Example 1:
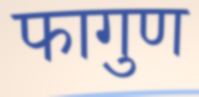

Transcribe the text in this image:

फागुण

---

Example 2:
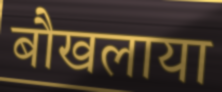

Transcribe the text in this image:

बौखलाया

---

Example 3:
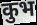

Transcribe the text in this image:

कुभ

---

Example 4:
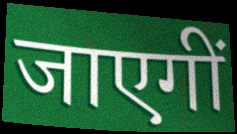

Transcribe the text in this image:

जाएगीं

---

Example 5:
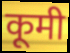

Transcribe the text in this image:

कूमी